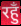
रहुँ